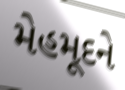
મેહમૂદને